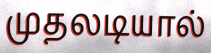
முதலடியால்